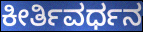
ಕೀರ್ತಿವರ್ಧನ